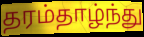
தரம்தாழ்ந்து